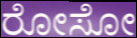
ರೋಸೋ